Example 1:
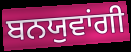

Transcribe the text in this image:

ਬਨਯੁਵਾਂਗੀ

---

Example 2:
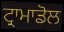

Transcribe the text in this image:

ਟ੍ਰਾਮਾਡੋਲ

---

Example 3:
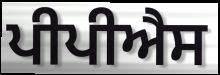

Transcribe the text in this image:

ਪੀਪੀਐਸ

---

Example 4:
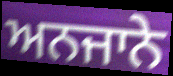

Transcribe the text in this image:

ਅਨਜਾਨੇ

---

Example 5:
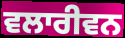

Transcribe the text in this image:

ਵਲਾਰੀਵਨ